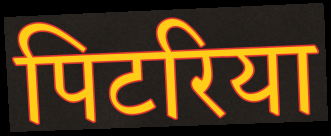
पिटरिया